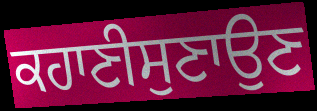
ਕਹਾਣੀਸੁਣਾਉਣ